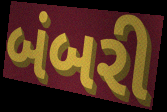
બંબરી